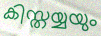
കിസ്തയ്യയും